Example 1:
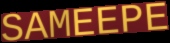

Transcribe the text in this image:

SAMEEPE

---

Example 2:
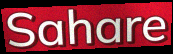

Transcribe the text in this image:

Sahare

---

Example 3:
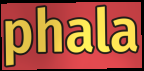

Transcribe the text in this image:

phala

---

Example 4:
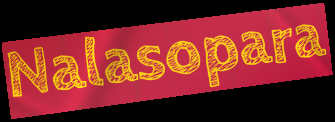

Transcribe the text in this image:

Nalasopara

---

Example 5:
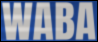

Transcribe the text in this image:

WABA